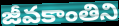
జీవకాంతిని